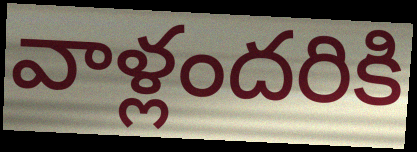
వాళ్లందరికి